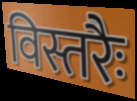
विस्तरैः